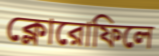
ক্লোরোফিলে